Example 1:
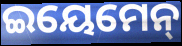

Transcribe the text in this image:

ଇୟେମେନ୍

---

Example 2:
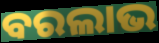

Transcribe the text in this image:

ବରଲାଭ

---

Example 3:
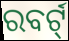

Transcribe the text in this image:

ରବର୍ଟ୍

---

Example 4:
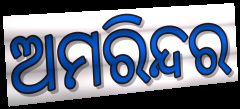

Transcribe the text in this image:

ଅମରିନ୍ଦର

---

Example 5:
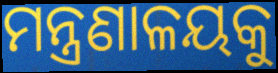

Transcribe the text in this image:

ମନ୍ତ୍ରଣାଳୟକୁ